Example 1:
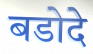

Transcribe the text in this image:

बडोदे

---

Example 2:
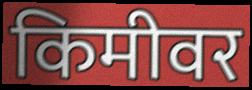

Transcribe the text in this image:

किमीवर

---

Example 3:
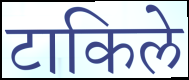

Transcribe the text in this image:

टाकिले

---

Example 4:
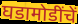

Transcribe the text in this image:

घडामोडींचें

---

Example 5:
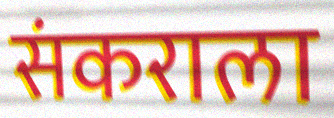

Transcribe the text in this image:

संकराला